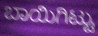
ಬಾಯಿಗಿಟ್ಟು